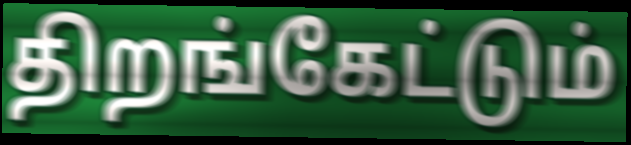
திறங்கேட்டும்